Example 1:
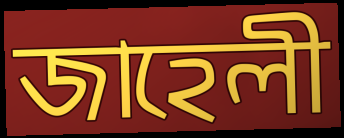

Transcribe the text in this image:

জাহেলী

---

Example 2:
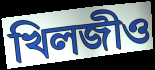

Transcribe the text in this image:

খিলজীও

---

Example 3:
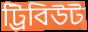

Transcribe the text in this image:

ট্রিবিউট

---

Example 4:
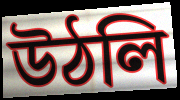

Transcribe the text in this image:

উঠলি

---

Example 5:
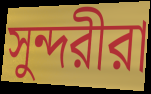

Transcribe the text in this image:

সুন্দরীরা